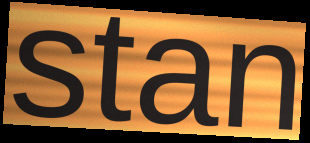
stan